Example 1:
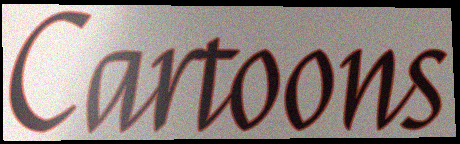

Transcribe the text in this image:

Cartoons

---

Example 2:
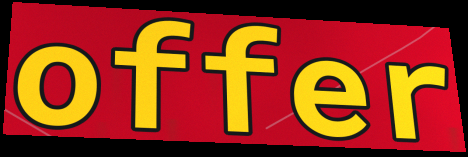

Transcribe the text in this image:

offer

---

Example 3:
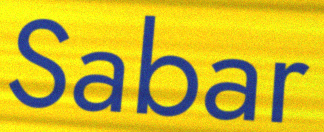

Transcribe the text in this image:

Sabar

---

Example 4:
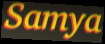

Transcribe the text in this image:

Samya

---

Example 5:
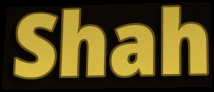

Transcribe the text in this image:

Shah